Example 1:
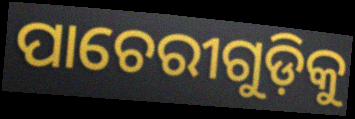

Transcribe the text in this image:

ପାଚେରୀଗୁଡ଼ିକୁ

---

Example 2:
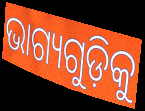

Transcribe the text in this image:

ଭାଗ୍ୟଗୁଡ଼ିକୁ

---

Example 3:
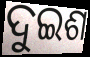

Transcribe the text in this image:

ଦୁଇଶ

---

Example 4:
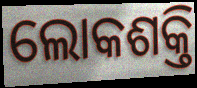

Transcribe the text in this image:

ଲୋକଶକ୍ତି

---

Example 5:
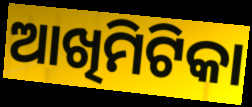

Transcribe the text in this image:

ଆଖିମିଟିକା